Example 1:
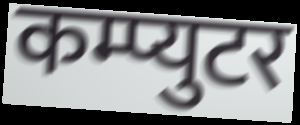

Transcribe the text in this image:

कम्प्युटर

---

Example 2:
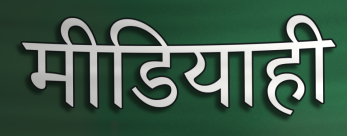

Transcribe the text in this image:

मीडियाही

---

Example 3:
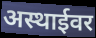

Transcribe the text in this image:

अस्थाईवर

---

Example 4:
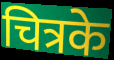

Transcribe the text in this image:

चित्रके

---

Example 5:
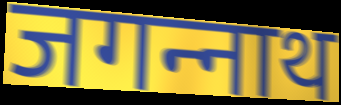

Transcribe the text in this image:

जगन्नाथ